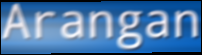
Arangan